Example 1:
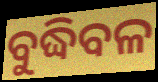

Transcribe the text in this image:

ବୁଦ୍ଧିବଳ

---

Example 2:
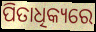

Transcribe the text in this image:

ପିତାଧିକ୍ୟରେ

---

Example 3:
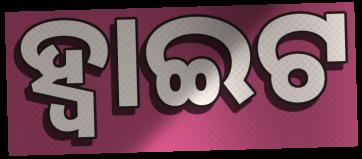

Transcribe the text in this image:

ହ୍ବାଇଟ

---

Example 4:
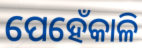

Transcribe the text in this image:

ପେହେଁକାଳି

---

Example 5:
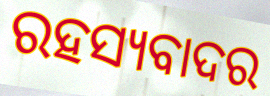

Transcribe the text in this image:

ରହସ୍ୟବାଦର